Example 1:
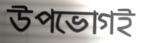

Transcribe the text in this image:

উপভোগই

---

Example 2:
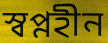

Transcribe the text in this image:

স্বপ্নহীন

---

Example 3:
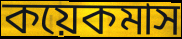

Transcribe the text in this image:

কয়েকমাস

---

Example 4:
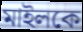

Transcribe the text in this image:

মাইলকে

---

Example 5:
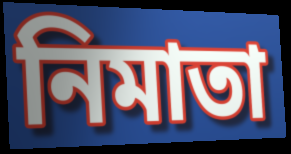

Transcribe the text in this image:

নিমাতা